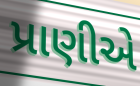
પ્રાણીએ